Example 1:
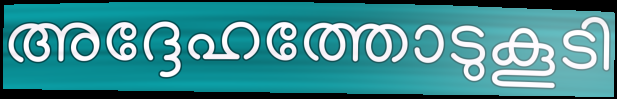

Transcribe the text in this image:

അദ്ദേഹത്തോടുകൂടി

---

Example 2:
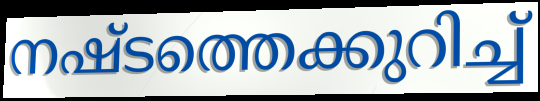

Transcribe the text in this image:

നഷ്ടത്തെക്കുറിച്ച്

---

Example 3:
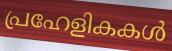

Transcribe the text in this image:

പ്രഹേളികകൾ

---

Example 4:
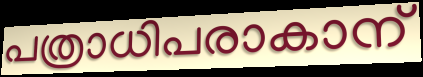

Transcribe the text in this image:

പത്രാധിപരാകാന്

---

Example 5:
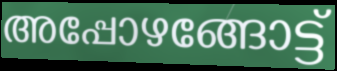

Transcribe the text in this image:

അപ്പോഴങ്ങോട്ട്